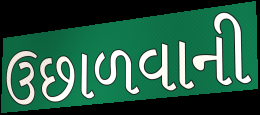
ઉછાળવાની